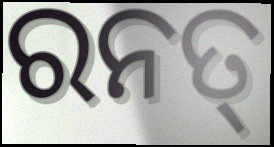
ରନତ୍